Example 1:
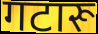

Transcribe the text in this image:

गटारू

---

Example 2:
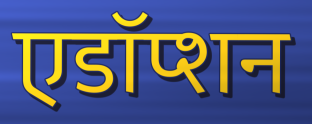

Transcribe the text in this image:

एडॉप्शन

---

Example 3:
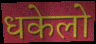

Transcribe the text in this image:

धकेलो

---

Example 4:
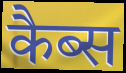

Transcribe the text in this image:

कैब्स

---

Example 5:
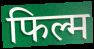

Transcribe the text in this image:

फिल्‍म